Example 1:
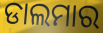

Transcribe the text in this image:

ଡାଲମାର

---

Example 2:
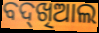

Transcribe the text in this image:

ବଦ୍‌ଖିଆଲ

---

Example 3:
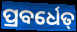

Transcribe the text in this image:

ପ୍ରବର୍ଧେତ୍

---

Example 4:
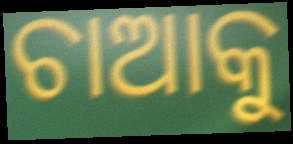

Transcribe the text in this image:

ଚାଆକୁ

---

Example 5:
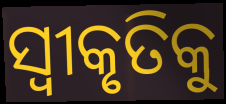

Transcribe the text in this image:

ସ୍ବୀକୃତିକୁ